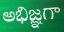
అభిజ్ఞగా